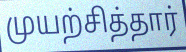
முயற்சித்தார்